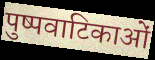
पुष्पवाटिकाओं